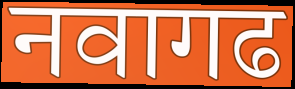
नवागढ